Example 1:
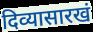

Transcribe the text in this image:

दिव्यासारखं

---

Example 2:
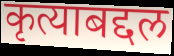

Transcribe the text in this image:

कृत्याबद्दल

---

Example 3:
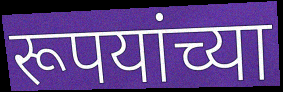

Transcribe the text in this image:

रूपयांच्या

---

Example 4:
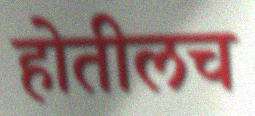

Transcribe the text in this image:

होतीलच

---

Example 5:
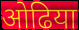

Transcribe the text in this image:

ओढिया